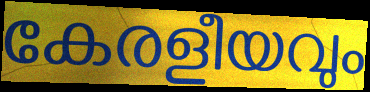
കേരളീയവും